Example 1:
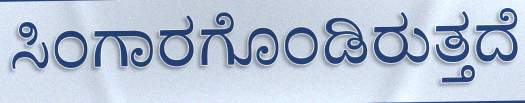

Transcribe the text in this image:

ಸಿಂಗಾರಗೊಂಡಿರುತ್ತದೆ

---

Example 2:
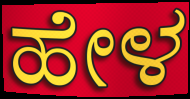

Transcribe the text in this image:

ಹೇಳ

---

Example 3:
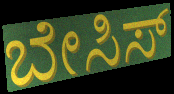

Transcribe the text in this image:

ಬೇಸಿಸ್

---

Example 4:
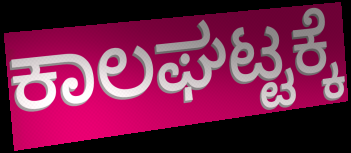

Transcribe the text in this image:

ಕಾಲಘಟ್ಟಕ್ಕೆ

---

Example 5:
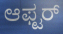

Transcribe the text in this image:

ಆಫ್ಟರ್